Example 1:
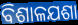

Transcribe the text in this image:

ବିଶାଳଯଶା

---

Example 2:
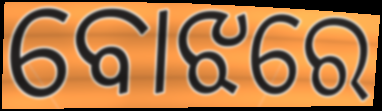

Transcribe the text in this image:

ବୋଝରେ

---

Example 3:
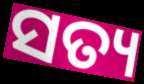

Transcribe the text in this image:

ସତ୍ୟ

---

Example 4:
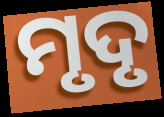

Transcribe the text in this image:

ମୃଦୃ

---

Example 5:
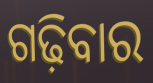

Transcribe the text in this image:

ଗଢ଼ିବାର